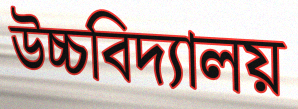
উচ্চবিদ্যালয়